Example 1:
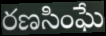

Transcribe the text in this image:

రణసింఘే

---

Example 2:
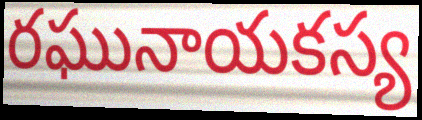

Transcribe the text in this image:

రఘునాయకస్య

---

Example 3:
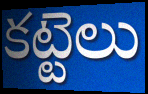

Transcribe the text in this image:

కట్టెలు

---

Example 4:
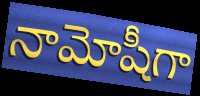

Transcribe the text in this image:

నామోషీగా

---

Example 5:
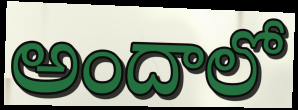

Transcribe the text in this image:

అందాలో